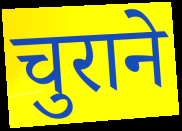
चुराने